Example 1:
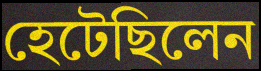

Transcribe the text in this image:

হেটেছিলেন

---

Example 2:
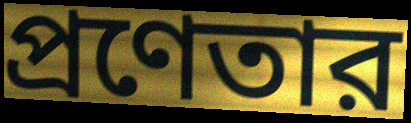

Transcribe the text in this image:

প্রণেতার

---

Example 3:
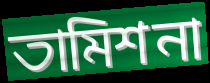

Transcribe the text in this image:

তামিশনা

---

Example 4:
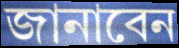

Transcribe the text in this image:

জানাবেন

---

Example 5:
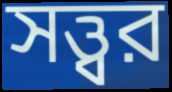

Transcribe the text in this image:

সত্ত্বর